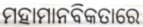
ମହାମାନବିକତାରେ